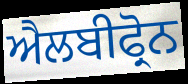
ਐਲਬੀਫ੍ਰੋਨ